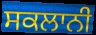
ਸਕਲਾਨੀ